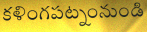
కళింగపట్నంనుండి